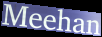
Meehan